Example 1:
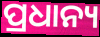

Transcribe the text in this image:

ପ୍ରଧାନ୍ୟ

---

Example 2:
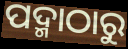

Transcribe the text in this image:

ପଦ୍ମାଠାରୁ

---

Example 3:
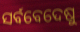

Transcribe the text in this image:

ସର୍ବବେଦେଷୁ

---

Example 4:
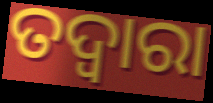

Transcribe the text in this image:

ତଦ୍ବାରା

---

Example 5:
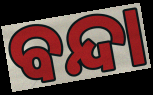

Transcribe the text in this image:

ବନ୍ଦା